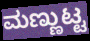
ಮಣ್ಣುಟ್ಟ